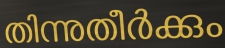
തിന്നുതീർക്കും